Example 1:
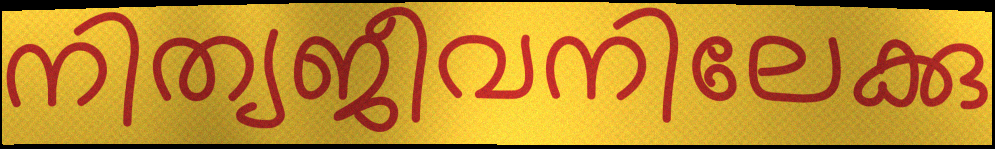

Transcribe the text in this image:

നിത്യജീവനിലേക്കു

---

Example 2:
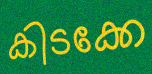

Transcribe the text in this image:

കിടക്കേ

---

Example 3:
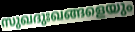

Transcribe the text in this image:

സുഖദുഃഖങ്ങളെയും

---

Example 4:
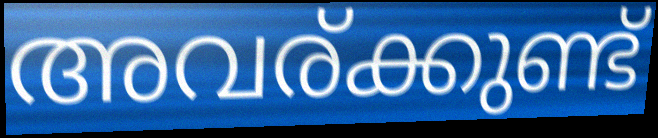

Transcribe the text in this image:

അവര്ക്കുണ്ട്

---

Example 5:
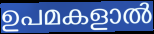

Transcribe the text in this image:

ഉപമകളാൽ